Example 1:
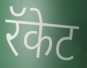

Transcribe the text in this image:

रॅकेट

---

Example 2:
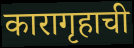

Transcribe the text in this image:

कारागृहाची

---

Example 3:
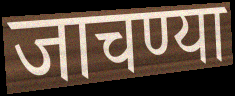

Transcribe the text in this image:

जाचण्या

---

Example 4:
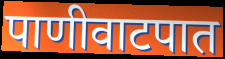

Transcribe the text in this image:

पाणीवाटपात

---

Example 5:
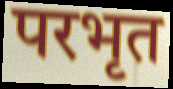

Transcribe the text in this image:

परभृत